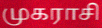
முகராசி